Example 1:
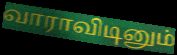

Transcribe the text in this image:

வாராவிடினும்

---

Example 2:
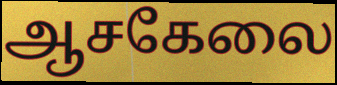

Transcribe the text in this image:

ஆசகேலை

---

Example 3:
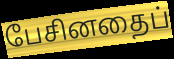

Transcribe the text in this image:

பேசினதைப்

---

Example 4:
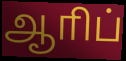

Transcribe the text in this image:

ஆரிப்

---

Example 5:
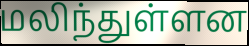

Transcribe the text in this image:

மலிந்துள்ளன